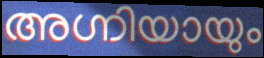
അഗ്നിയായും